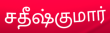
சதீஷ்குமார்